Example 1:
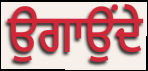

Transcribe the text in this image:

ਉਗਾਉਂਦੇ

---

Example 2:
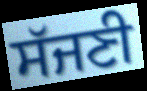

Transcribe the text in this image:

ਸੱਜਣੀ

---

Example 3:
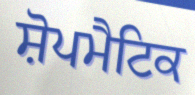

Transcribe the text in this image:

ਸ਼ੋਪਮੈਟਿਕ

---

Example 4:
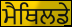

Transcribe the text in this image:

ਮੈਥਿਲਡੇ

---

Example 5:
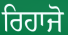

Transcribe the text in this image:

ਰਿਹਾਜੋ